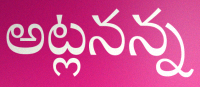
అట్లనన్న